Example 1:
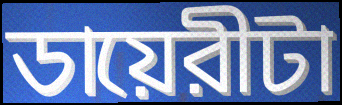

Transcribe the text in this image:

ডায়েরীটা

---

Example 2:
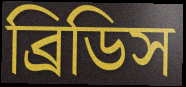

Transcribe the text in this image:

ব্রিডিস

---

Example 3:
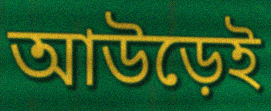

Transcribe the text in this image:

আউড়েই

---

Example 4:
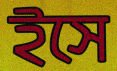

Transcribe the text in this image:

ইসে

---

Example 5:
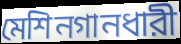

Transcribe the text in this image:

মেশিনগানধারী